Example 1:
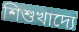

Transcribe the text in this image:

শিশুখাদ্যে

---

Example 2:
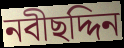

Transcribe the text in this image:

নবীছদ্দিন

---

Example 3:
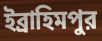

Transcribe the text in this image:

ইব্রাহিমপুর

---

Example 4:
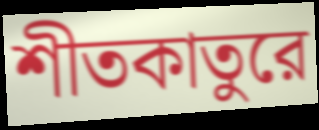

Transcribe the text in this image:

শীতকাতুরে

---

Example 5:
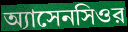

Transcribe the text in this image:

অ্যাসেনসিওর